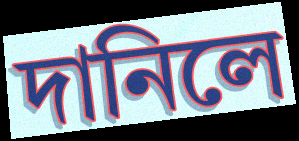
দানিলে